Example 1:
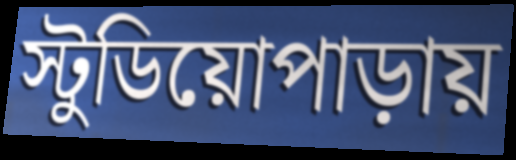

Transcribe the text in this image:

স্টুডিয়োপাড়ায়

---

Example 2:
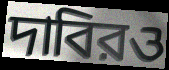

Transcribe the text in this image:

দাবিরও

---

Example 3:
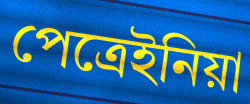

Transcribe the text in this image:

পেত্রেইনিয়া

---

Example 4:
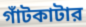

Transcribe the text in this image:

গাঁটকাটার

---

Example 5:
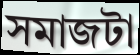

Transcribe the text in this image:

সমাজটা